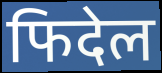
फिदेल